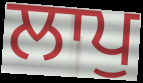
ਲਾਪੁ